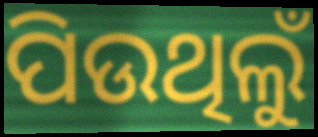
ପିଉଥିଲୁଁ